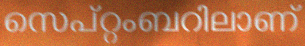
സെപ്റ്റംബറിലാണ്